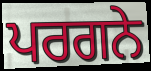
ਪਰਗਨੇ